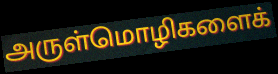
அருள்மொழிகளைக்